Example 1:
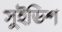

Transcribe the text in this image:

সুইডিশ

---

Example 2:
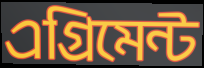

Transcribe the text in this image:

এগ্রিমেন্ট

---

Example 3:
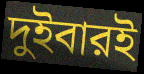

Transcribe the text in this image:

দুইবারই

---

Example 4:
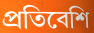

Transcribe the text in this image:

প্রতিবেশি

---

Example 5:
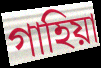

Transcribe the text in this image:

গাহিয়া